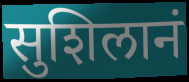
सुशिलानं